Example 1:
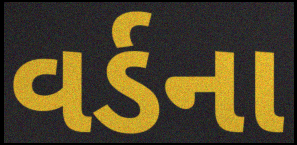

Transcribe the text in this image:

વર્ડના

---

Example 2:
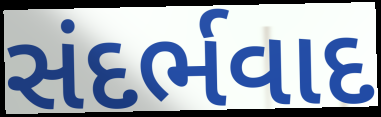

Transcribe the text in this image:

સંદર્ભવાદ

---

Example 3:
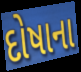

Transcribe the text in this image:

દોષાના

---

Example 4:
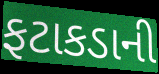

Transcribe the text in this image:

ફટાકડાની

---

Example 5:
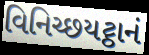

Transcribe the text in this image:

વિનિચ્છયટ્ઠાનં